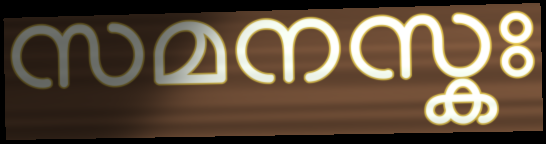
സമനസ്കഃ